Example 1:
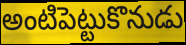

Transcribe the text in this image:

అంటిపెట్టుకొనుడు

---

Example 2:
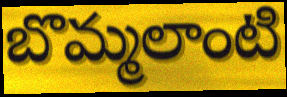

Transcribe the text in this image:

బొమ్మలాంటి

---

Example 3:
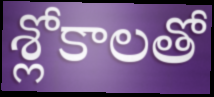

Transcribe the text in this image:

శ్లోకాలతో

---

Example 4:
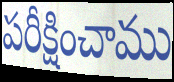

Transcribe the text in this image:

పరీక్షించాము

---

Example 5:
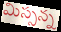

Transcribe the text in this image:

మిస్సన్న